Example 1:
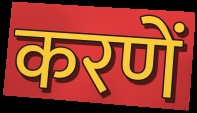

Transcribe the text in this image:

करणें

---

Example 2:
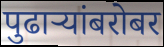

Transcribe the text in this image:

पुढाऱ्यांबरोबर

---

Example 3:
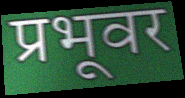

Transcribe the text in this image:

प्रभूवर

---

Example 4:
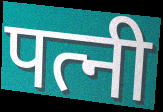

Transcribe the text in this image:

पत्‍नी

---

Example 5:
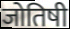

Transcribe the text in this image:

जोतिषी